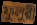
ফুলুরী